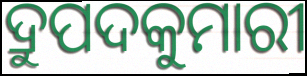
ଦ୍ରୁପଦକୁମାରୀ